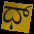
ಧ್